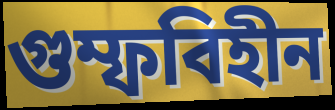
গুম্ফবিহীন